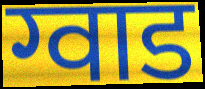
ग्वाड